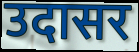
उदासर